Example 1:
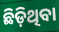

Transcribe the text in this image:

ଛିଡ଼ିଥିବା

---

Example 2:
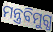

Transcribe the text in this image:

ମନ୍ତ୍ରବିମୁଗ୍ଧ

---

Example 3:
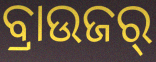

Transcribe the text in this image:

ବ୍ରାଉଜର୍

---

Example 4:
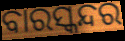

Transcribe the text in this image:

ବାରସ୍କନ୍ଦର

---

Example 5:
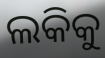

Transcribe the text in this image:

ଲକିକୁ